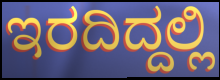
ಇರದಿದ್ದಲ್ಲಿ